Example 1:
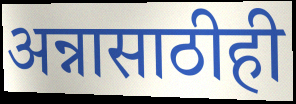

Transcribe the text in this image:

अन्नासाठीही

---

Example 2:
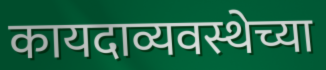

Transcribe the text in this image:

कायदाव्यवस्थेच्या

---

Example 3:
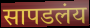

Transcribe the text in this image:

सापडलंय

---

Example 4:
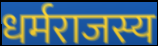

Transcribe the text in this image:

धर्मराजस्य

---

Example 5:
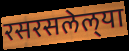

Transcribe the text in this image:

रसरसलेल्या